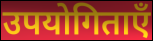
उपयोगिताएँ